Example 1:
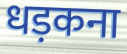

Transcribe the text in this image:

धड़कना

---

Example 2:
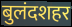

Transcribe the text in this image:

बुलंदशहर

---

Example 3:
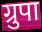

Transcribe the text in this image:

ग्रुपा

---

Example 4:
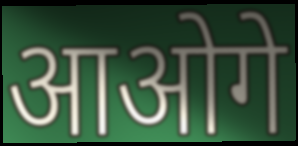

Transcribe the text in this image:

आओगे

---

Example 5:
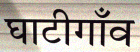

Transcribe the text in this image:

घाटीगाँव